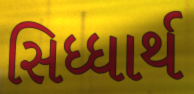
સિધ્ધાર્થ